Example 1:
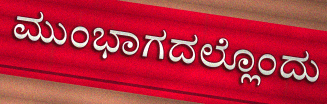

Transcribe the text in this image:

ಮುಂಭಾಗದಲ್ಲೊಂದು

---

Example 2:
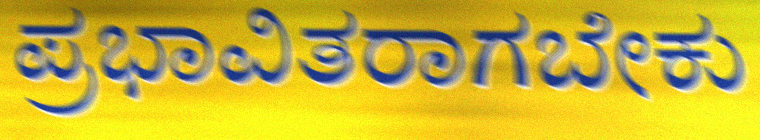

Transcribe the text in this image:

ಪ್ರಭಾವಿತರಾಗಬೇಕು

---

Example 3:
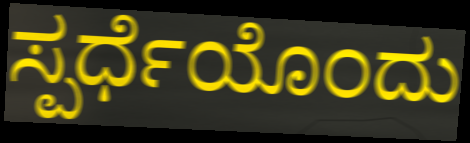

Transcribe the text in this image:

ಸ್ಪರ್ಧೆಯೊಂದು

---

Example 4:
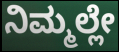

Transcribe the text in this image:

ನಿಮ್ಮಲ್ಲೇ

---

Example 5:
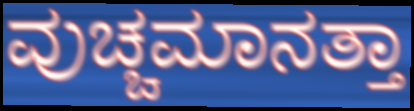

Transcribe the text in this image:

ವುಚ್ಚಮಾನತ್ತಾ